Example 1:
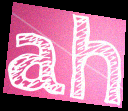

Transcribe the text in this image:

ah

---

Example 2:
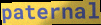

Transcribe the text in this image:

paternal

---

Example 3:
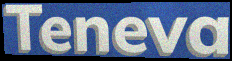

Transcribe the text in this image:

Teneva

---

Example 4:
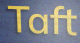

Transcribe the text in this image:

Taft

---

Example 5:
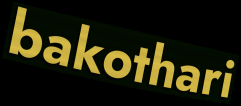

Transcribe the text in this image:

bakothari